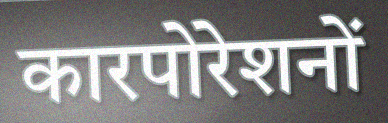
कारपोरेशनों